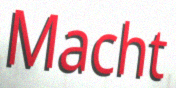
Macht